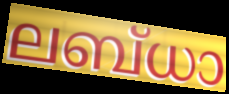
ലബ്ധാ